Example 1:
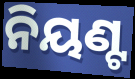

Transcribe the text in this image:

ନିୟଣ୍ଟ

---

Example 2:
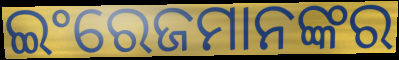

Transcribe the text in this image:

ଇଂରେଜମାନଙ୍କର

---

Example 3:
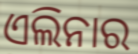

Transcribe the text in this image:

ଏଲିନାର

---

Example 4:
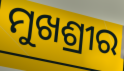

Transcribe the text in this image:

ମୁଖଶ୍ରୀର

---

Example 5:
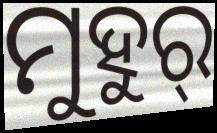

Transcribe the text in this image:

ମୁହୁର୍